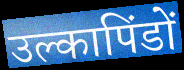
उल्कापिंडों